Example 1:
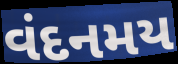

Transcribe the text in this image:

વંદનમય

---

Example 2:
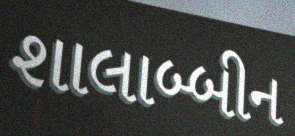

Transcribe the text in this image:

શાલાબ્બીન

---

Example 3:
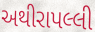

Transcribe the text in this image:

અથીરાપલ્લી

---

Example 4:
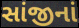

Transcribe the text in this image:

સાંજીનાં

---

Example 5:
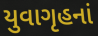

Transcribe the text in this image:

યુવાગૃહનાં